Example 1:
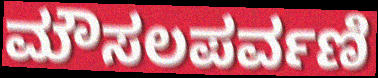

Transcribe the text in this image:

ಮೌಸಲಪರ್ವಣಿ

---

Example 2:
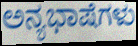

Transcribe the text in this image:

ಅನ್ಯಭಾಷೆಗಳು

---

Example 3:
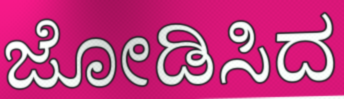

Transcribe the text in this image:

ಜೋಡಿಸಿದ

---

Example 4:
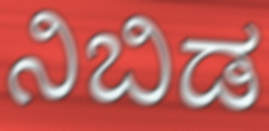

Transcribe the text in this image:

ನಿಬಿಡ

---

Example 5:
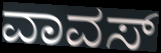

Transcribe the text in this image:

ವಾವಸ್